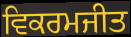
ਵਿਕਰਮਜੀਤ